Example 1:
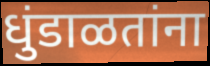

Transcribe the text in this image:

धुंडाळतांना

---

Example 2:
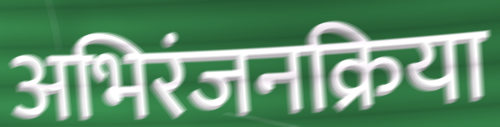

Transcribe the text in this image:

अभिरंजनक्रिया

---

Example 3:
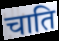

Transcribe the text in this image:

चाति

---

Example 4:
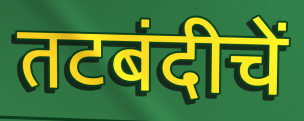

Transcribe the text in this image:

तटबंदीचें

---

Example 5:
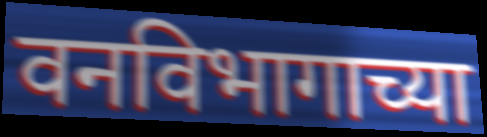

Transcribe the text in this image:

वनविभागाच्या